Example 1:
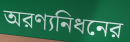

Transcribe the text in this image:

অরণ্যনিধনের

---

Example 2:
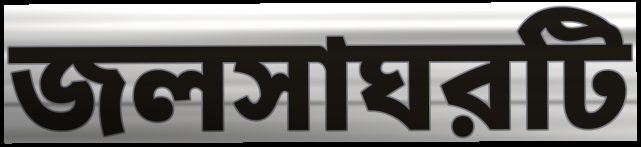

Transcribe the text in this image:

জলসাঘরটি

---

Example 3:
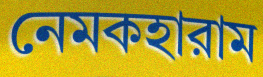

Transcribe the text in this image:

নেমকহারাম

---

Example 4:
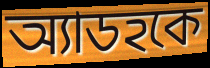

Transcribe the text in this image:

অ্যাডহকে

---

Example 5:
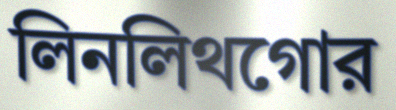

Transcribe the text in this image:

লিনলিথগোর